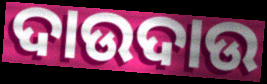
ଦାଉଦାଉ